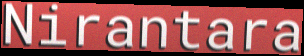
Nirantara